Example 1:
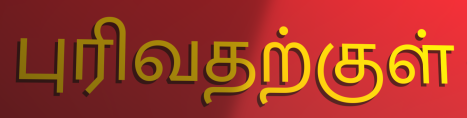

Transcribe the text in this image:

புரிவதற்குள்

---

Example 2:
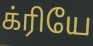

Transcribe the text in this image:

க்ரியே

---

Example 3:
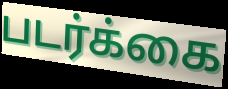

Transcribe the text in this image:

படர்க்கை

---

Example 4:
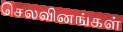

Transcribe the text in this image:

செலவினங்கள்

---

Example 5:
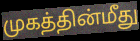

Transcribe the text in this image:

முகத்தின்மீது